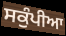
ਸਕੁੰਪੀਆ